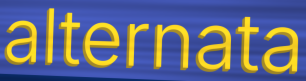
alternata